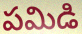
పమిడి